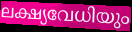
ലക്ഷ്യവേധിയും